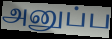
அனுப்ப